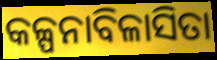
କଳ୍ପନାବିଳାସିତା